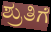
ಶ್ರುತಿಗೆ